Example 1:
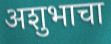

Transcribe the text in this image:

अशुभाचा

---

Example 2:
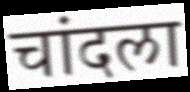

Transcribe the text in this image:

चांदला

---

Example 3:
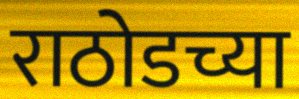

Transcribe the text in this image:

राठोडच्या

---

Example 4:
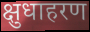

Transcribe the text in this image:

क्षुधाहरण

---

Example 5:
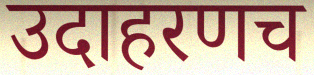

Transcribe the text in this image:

उदाहरणच